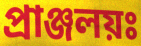
প্রাঞ্জলয়ঃ